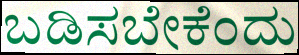
ಬಡಿಸಬೇಕೆಂದು